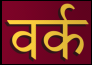
वर्क